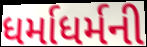
ધર્માધર્મની